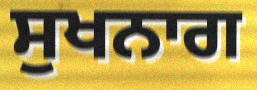
ਸੁਖਨਾਗ